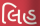
લિહ